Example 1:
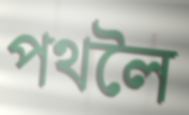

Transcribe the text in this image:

পথলৈ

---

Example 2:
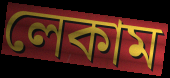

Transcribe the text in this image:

লেকাম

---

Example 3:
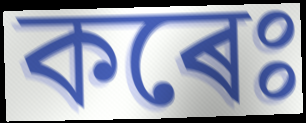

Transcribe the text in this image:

কৰেঃ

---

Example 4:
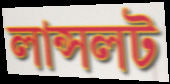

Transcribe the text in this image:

লান্সলট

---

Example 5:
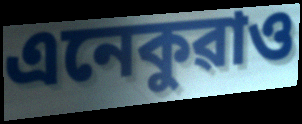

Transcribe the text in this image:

এনেকুৱাও